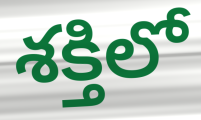
శక్తిలో